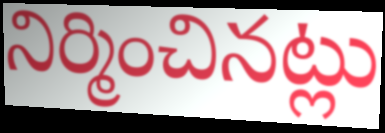
నిర్మించినట్లు